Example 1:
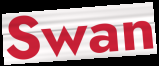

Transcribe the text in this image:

Swan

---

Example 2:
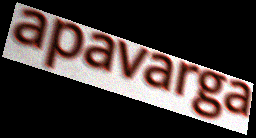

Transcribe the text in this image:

apavarga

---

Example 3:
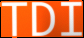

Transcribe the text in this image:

TDI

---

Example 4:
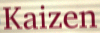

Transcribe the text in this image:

Kaizen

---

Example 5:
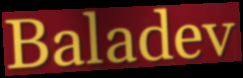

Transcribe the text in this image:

Baladev